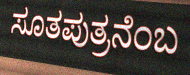
ಸೂತಪುತ್ರನೆಂಬ